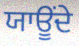
ਯਾਊਂਦੇ